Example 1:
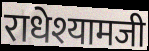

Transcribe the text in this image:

राधेश्यामजी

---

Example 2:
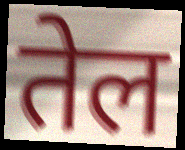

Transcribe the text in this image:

तेल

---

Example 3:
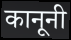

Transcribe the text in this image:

कानूनी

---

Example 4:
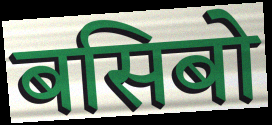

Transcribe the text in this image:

बसिबो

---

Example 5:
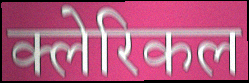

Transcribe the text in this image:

क्लेरिकल